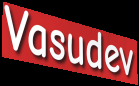
Vasudev